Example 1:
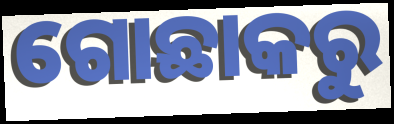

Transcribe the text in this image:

ଗୋଛାକରୁ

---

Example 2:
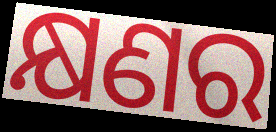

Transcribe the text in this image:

କ୍ଷଣର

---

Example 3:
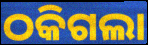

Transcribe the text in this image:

ଠକିଗଲା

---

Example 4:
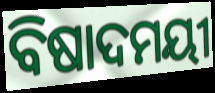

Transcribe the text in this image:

ବିଷାଦମୟୀ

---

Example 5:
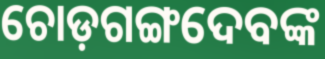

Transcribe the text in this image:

ଚୋଡ଼ଗଙ୍ଗଦେବଙ୍କ